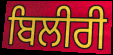
ਬਿਲੀਰੀ